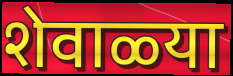
शेवाळ्या